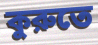
কুরুতে